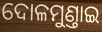
ଦୋଳମୁଣ୍ତାଇ